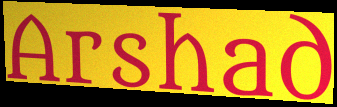
Arshad